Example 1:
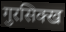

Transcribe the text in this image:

गुरसिक्ख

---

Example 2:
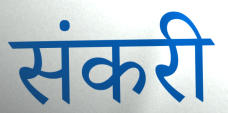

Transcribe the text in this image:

संकरी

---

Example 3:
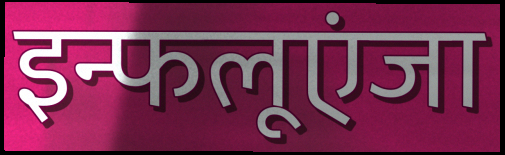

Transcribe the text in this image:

इन्फलूएंजा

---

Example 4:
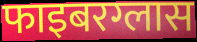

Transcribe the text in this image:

फाइबरग्लास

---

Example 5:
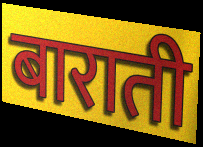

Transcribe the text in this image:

बाराती